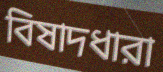
বিষাদধারা